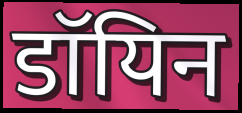
डॉयिन